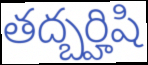
తద్బర్హిషి